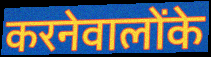
करनेवालोंके